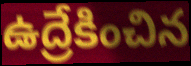
ఉద్రేకించిన